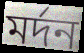
মর্দন